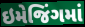
ઇમેજિંગમાં